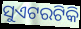
ସୁଏଟରଟିକି